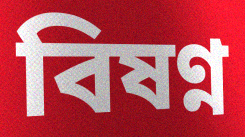
বিষণ্ন